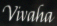
Vivaha